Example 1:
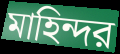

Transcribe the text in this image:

মাহিন্দর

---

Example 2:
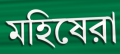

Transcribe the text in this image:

মহিষেরা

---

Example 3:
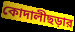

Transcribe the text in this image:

কোদালীছড়ার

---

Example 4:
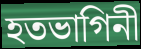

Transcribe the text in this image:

হতভাগিনী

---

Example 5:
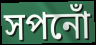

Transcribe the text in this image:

সপনোঁ